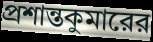
প্রশান্তকুমারের